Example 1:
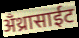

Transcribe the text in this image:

अँथ्रासाईट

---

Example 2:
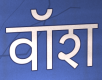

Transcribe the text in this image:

वॉश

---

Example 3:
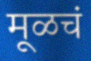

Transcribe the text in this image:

मूळचं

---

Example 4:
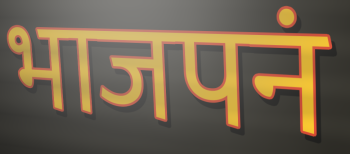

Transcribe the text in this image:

भाजपनं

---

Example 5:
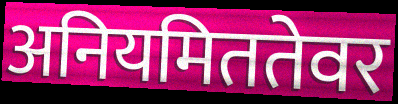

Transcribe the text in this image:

अनियमिततेवर